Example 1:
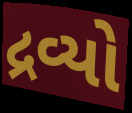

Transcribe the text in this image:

દ્રવ્યો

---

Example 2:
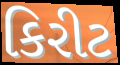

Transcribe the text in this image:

કિરીટ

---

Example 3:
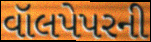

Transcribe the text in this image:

વૉલપેપરની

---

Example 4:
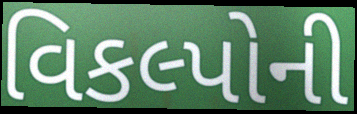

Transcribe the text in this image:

વિકલ્પોની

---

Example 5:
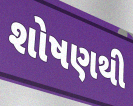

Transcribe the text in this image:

શોષણથી